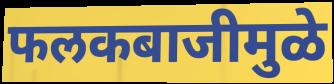
फलकबाजीमुळे